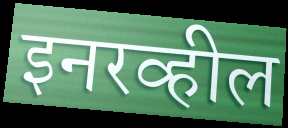
इनरव्हील